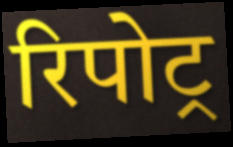
रिपोट्र